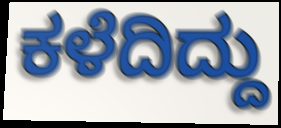
ಕಳೆದಿದ್ದು